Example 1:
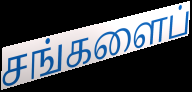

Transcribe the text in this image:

சங்களைப்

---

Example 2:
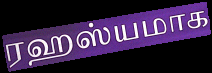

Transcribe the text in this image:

ரஹஸ்யமாக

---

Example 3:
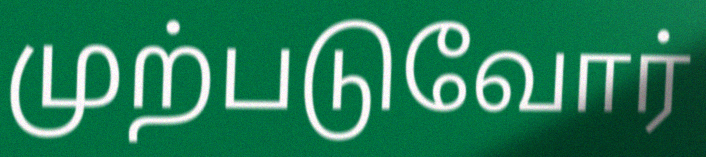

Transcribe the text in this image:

முற்படுவோர்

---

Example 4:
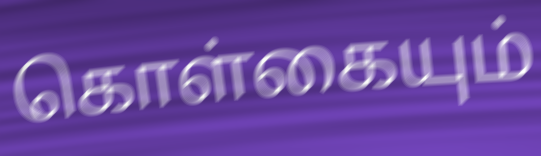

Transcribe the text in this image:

கொள்கையும்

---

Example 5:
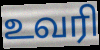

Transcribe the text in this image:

உவரி